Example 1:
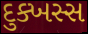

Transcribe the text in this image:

દુક્ખસ્સ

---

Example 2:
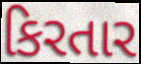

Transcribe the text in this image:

કિરતાર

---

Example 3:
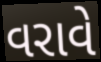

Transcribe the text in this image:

વરાવે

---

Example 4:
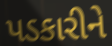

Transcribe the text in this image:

પડકારીને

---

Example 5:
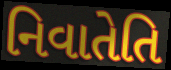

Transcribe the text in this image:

નિવાતેતિ